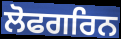
ਲੋਫਗਰਿਨ